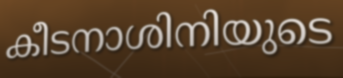
കീടനാശിനിയുടെ